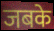
जबके